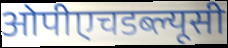
ओपीएचडब्ल्यूसी